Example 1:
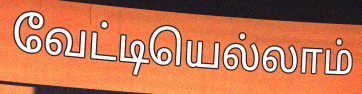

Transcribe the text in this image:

வேட்டியெல்லாம்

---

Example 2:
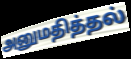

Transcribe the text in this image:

அனுமதித்தல்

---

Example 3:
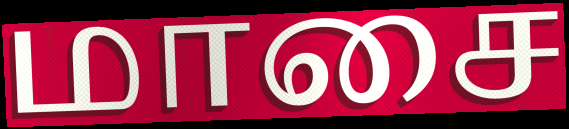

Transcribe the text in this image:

மாசை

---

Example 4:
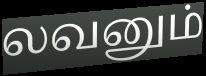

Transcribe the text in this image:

லவனும்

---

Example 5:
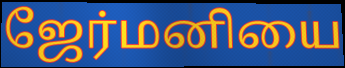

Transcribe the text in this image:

ஜேர்மனியை